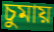
চুমায়